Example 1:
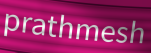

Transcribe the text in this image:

prathmesh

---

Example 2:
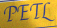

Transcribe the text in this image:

PETL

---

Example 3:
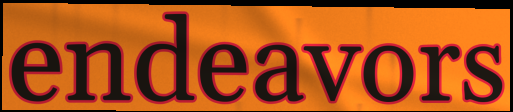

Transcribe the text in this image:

endeavors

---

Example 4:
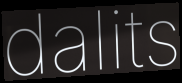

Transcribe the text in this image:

dalits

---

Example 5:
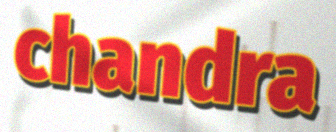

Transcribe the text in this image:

chandra